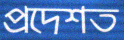
প্ৰদেশত